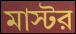
মাস্টর